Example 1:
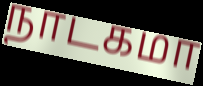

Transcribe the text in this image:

நாடகமா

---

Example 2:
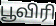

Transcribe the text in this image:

பூவிரி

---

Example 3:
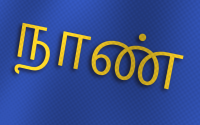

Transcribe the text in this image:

நாண்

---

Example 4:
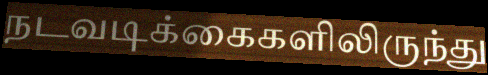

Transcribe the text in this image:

நடவடிக்கைகளிலிருந்து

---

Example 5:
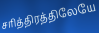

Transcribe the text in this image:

சரித்திரத்திலேயே